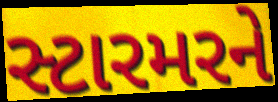
સ્ટારમરને